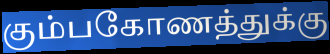
கும்பகோணத்துக்கு